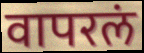
वापरलं